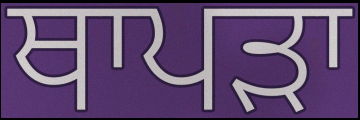
ਥਾਪੜਾ